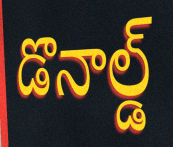
డొనాల్డ్